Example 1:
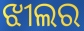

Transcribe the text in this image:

ଝୀଲର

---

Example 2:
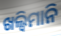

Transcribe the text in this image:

ଖଲ୍ୱିମାନି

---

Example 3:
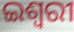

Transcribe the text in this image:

ଇଶ୍ୱରୀ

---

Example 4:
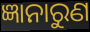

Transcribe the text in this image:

ଜ୍ଞାନାରୁଣ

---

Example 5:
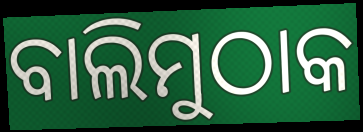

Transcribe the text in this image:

ବାଲିମୁଠାକ